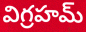
విగ్రహమ్